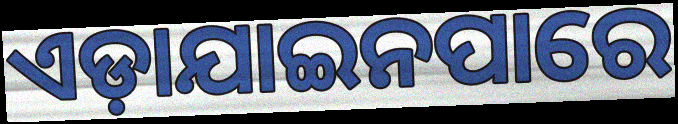
ଏଡ଼ାଯାଇନପାରେ